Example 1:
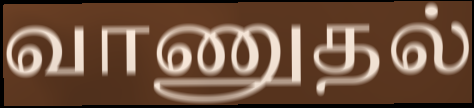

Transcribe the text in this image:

வாணுதல்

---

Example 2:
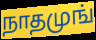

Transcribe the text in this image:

நாதமுங்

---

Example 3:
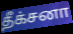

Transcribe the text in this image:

தீக்சனா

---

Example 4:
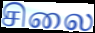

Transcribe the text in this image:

சிலை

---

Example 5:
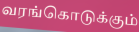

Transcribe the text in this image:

வரங்கொடுக்கும்